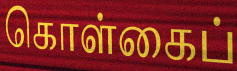
கொள்கைப்